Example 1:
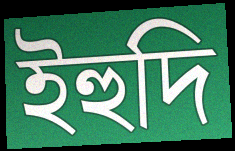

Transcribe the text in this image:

ইহুদি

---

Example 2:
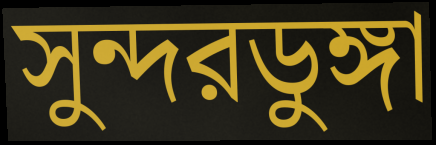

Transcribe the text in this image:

সুন্দরডুঙ্গা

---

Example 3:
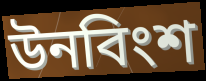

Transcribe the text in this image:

উনবিংশ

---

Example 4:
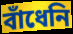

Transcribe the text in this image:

বাঁধেনি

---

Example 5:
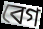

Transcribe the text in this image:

বেগ